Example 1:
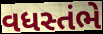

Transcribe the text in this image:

વધસ્તંભે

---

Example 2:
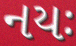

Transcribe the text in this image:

નયઃ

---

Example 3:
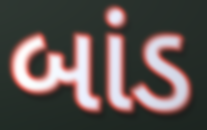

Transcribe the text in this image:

બાંડ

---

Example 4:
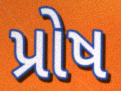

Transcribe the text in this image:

પ્રોષ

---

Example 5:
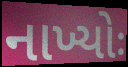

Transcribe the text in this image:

નાખ્યોઃ